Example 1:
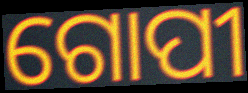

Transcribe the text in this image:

ଗୋପୀ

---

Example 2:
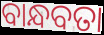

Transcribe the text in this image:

ବାନ୍ଧବତା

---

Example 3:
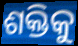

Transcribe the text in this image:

ଶକ୍ତିକୁ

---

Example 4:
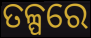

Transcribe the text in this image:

ତଳ୍ପରେ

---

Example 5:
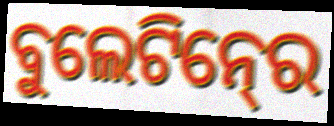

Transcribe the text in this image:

ବୁଲେଟିନ୍‍ରେ